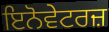
ਇਨੋਵੇਟਰਜ਼